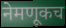
नेमणूकच